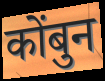
कोंबुन